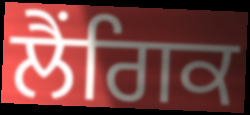
ਲੈਂਗਿਕ